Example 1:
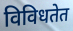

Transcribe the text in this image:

विविधतेत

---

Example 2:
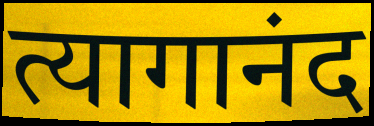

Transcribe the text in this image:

त्यागानंद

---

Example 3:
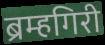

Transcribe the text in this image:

ब्रम्हगिरी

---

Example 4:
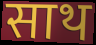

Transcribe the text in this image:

साथ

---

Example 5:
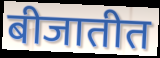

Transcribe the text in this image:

बीजातीत